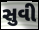
સુવી